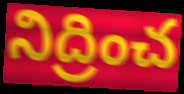
నిద్రించ